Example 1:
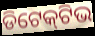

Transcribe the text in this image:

ଡିଟେକ୍‍ଟିଭ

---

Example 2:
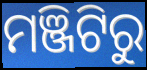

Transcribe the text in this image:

ମଞ୍ଜିଟିରୁ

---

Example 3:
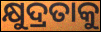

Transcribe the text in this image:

କ୍ଷୁଦ୍ରତାକୁ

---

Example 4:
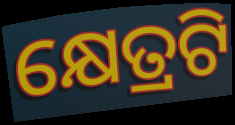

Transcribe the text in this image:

କ୍ଷେତ୍ରଟି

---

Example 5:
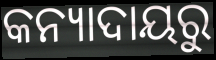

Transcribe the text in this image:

କନ୍ୟାଦାୟରୁ